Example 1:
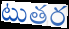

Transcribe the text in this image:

టుతర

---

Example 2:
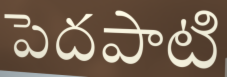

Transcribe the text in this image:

పెదపాటి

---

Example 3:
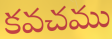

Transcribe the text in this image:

కవచము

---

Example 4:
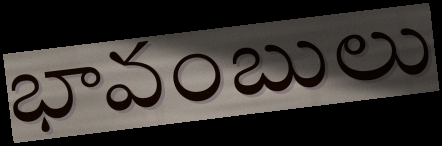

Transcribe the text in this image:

భావంబులు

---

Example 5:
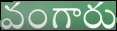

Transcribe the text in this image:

వంగారు